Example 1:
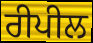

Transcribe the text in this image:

ਰੀਪੀਲ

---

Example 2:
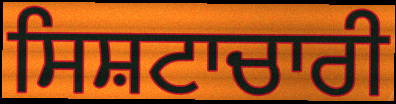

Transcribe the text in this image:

ਸਿਸ਼ਟਾਚਾਰੀ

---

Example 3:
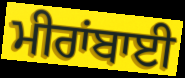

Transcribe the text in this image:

ਮੀਰਾਂਬਾਈ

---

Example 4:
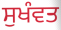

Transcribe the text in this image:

ਸੁਖੰਵਤ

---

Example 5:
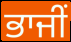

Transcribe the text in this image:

ਭਾਜੀਂ